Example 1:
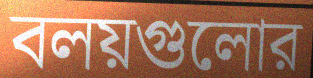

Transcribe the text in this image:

বলয়গুলোর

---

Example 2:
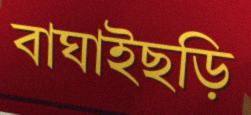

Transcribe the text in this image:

বাঘাইছড়ি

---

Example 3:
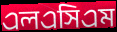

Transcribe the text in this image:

এলএসিএম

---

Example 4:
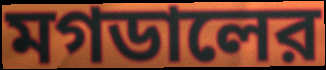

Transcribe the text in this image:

মগডালের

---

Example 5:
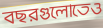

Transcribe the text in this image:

বছরগুলোতেও